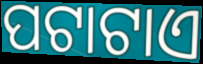
ପଟାଟାଏ